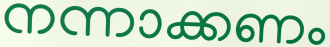
നന്നാക്കണം